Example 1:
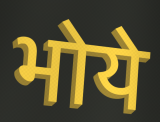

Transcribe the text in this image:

भोये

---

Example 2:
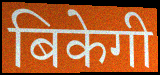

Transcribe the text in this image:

बिकेगी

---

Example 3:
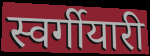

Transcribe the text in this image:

स्वर्गीयारी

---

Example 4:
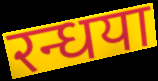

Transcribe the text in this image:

रन्धया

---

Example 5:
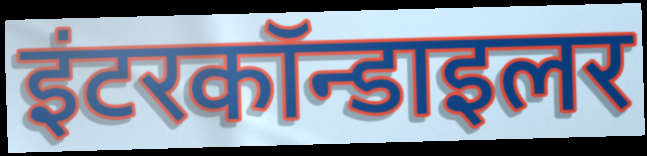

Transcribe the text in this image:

इंटरकॉन्डाइलर